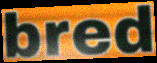
bred